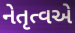
નેતૃત્વએ